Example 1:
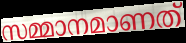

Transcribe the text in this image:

സമ്മാനമാണത്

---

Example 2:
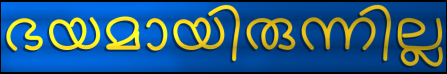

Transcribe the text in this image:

ഭയമായിരുന്നില്ല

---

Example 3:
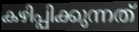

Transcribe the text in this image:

കഴിപ്പിക്കുന്നത്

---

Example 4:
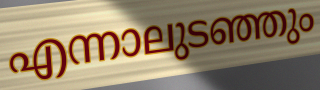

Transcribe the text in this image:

എന്നാലുടഞ്ഞും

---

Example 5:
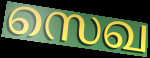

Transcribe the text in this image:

സെഖ